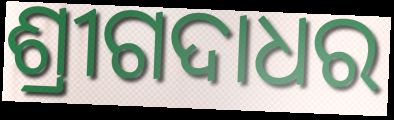
ଶ୍ରୀଗଦାଧର